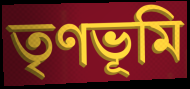
তৃণভূমি